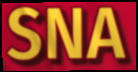
SNA